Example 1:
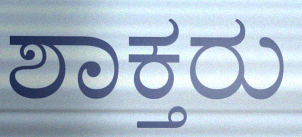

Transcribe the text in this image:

ಶಾಕ್ತರು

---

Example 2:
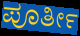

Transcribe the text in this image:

ಪೂರ್ತೀ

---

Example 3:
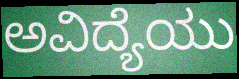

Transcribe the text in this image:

ಅವಿದ್ಯೆಯು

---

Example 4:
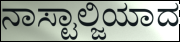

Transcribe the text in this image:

ನಾಸ್ಟಾಲ್ಜಿಯಾದ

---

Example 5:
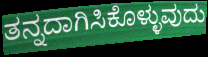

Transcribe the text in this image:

ತನ್ನದಾಗಿಸಿಕೊಳ್ಳುವುದು